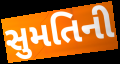
સુમતિની